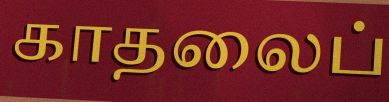
காதலைப்